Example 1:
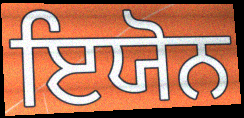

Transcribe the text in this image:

ਇਯੋਨ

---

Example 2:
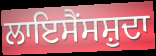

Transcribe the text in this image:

ਲਾਇਸੈਂਸਸ਼ੁਦਾ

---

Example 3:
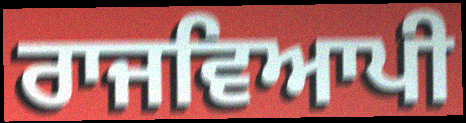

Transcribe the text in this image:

ਰਾਜਵਿਆਪੀ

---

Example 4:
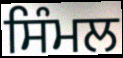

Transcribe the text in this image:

ਸਿੰਮਲ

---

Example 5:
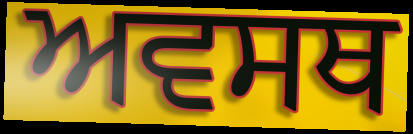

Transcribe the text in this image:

ਅਵਸਥ